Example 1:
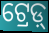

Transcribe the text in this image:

ଟ୍ରେଡ଼୍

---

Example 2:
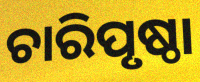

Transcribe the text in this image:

ଚାରିପୃଷ୍ଠା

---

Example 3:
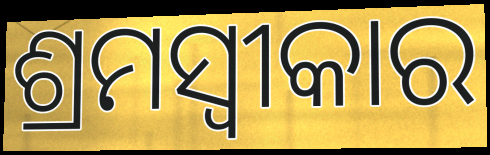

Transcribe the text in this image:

ଶ୍ରମସ୍ୱୀକାର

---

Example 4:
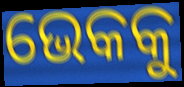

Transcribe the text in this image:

ଭେକକୁ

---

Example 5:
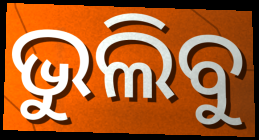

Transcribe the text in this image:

ଭୁଲିବୁ